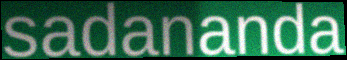
sadananda